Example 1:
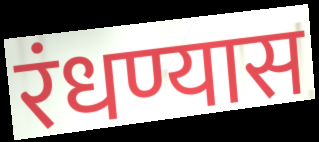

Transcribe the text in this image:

रंधण्यास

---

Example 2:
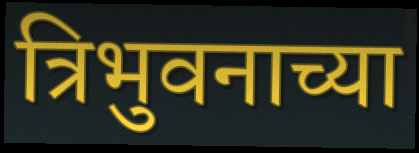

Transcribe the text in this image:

त्रिभुवनाच्या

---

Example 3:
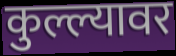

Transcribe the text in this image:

कुल्ल्यावर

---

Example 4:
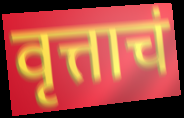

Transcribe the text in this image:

वृत्ताचं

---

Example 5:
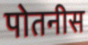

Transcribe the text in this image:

पोतनीस